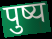
पुष्य